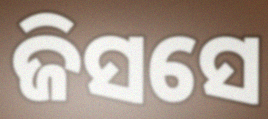
ଜିସସେ